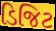
ડિજિટ